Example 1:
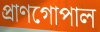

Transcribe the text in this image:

প্রাণগোপাল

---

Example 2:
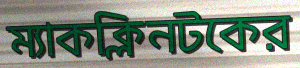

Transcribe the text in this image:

ম্যাকক্লিনটকের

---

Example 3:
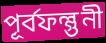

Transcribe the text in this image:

পূর্বফল্গুনী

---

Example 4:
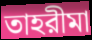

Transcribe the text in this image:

তাহরীমা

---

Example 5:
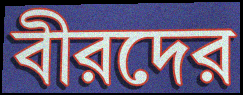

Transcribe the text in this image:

বীরদের